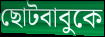
ছোটবাবুকে